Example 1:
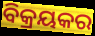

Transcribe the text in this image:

ବିକ୍ରୟକର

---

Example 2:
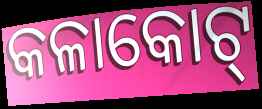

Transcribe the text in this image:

କଳାକୋଟ୍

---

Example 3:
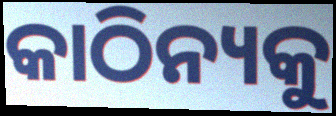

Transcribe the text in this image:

କାଠିନ୍ୟକୁ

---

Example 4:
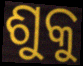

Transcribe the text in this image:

ଶୁକୁ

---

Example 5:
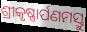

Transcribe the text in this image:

ଶ୍ରୀକୃଷ୍ଣାର୍ପଣମସ୍ତୁ